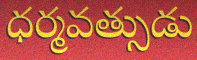
ధర్మవత్సుడు